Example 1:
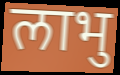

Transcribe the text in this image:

लाभु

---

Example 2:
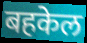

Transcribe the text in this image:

बहकेल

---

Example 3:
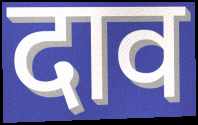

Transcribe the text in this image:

दाव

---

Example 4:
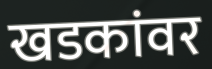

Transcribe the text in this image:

खडकांवर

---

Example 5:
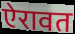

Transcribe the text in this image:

ऐरावत